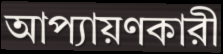
আপ্যায়ণকারী